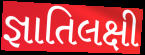
જ્ઞાતિલક્ષી